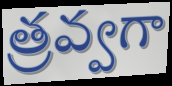
త్రవ్వగా